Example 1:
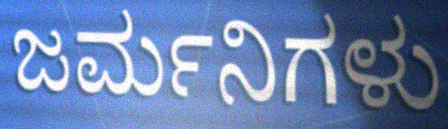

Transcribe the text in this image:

ಜರ್ಮನಿಗಳು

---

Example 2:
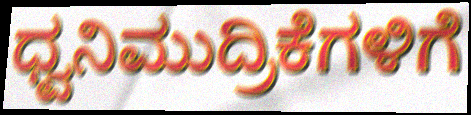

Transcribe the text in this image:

ಧ್ವನಿಮುದ್ರಿಕೆಗಳಿಗೆ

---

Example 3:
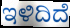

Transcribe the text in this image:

ಇಳಿದಿದೆ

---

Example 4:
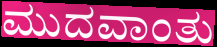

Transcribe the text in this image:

ಮುದವಾಂತು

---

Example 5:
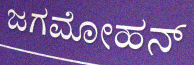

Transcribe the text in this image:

ಜಗಮೋಹನ್